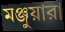
মঞ্জুয়ারা